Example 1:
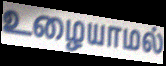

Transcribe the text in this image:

உழையாமல்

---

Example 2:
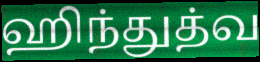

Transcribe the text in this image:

ஹிந்துத்வ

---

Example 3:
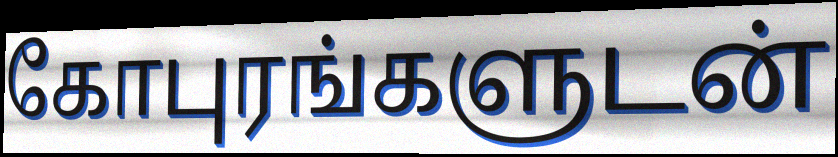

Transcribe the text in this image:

கோபுரங்களுடன்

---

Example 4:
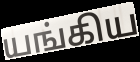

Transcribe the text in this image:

யங்கிய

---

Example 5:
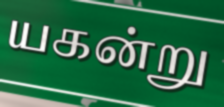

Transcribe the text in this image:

யகன்று